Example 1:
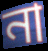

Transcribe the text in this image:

না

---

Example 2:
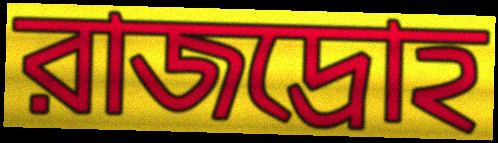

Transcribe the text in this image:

রাজদ্রোহ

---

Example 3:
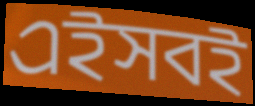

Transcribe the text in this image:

এইসবই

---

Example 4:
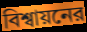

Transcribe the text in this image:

বিশ্বায়নের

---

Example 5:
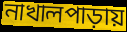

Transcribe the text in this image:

নাখালপাড়ায়